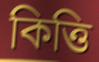
কিত্তি